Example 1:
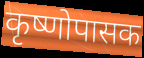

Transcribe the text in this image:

कृष्णोपासक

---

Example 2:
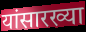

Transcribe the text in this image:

यांसारख्‍या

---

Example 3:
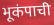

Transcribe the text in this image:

भूकंपाची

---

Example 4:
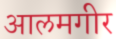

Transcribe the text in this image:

आलमगीर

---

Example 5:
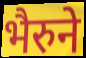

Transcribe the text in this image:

भैरुने